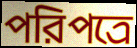
পরিপত্রে